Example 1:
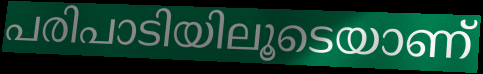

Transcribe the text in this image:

പരിപാടിയിലൂടെയാണ്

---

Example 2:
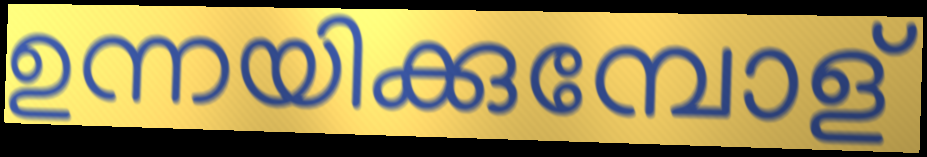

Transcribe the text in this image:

ഉന്നയിക്കുമ്പോള്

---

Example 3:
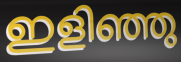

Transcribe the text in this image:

ഇളിഞ്ഞു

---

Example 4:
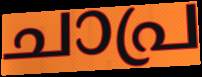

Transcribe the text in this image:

ചാപ്ര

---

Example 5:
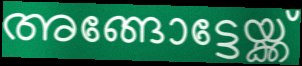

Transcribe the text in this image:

അങ്ങോട്ടേയ്ക്ക്